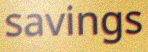
savings